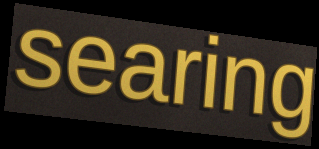
searing